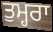
ਤੁਮ੍ਹਰਾ